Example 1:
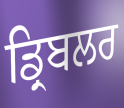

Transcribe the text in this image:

ਡ੍ਰਿਬਲਰ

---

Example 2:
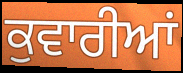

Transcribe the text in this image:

ਕੁਵਾਰੀਆਂ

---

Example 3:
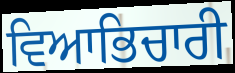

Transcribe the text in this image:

ਵਿਆਭਿਚਾਰੀ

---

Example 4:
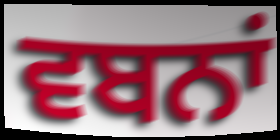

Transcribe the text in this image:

ਵਬਨਾਂ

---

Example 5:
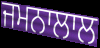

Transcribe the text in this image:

ਜਮਨਾਲਾਲ